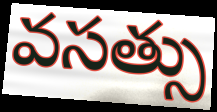
వసత్సు